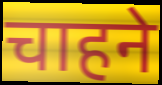
चाहने